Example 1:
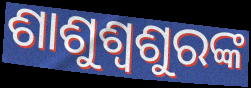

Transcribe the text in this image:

ଶାଶୁଶ୍ୱଶୁରଙ୍କ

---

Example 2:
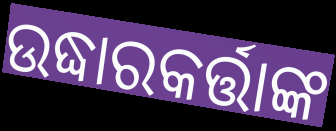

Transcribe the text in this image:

ଉଦ୍ଧାରକର୍ତ୍ତାଙ୍କ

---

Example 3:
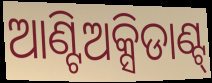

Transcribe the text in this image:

ଆଣ୍ଟିଅକ୍ସିଡାଣ୍ଟ୍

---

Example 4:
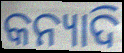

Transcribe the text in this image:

କନ୍ୟାଦି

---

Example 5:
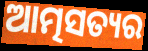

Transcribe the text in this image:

ଆତ୍ମସତ୍ୟର